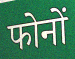
फोनों